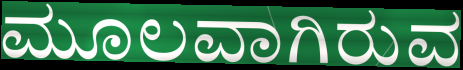
ಮೂಲವಾಗಿರುವ